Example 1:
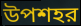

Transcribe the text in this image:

উপশহর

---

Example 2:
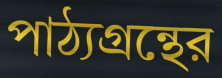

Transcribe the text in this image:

পাঠ্যগ্রন্থের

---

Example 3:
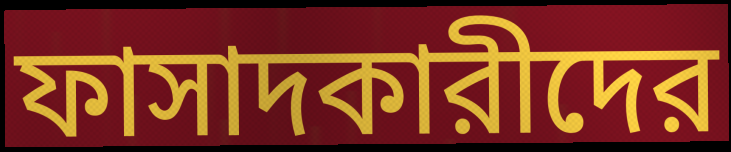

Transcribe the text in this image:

ফাসাদকারীদের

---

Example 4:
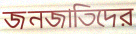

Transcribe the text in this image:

জনজাতিদের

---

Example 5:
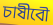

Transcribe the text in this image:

চাষীবৌ